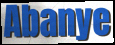
Abanye